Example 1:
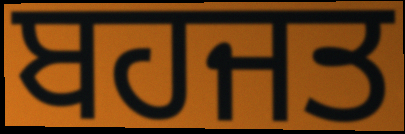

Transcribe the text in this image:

ਬਹਜਤ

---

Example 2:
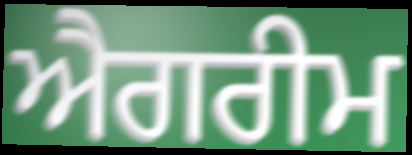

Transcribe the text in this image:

ਐਗਰੀਮ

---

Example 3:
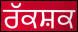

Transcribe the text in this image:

ਰੱਕਸ਼ਕ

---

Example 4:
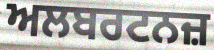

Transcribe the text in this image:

ਅਲਬਰਟਨਜ਼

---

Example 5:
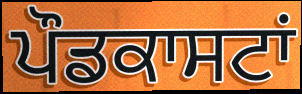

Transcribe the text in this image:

ਪੌਡਕਾਸਟਾਂ